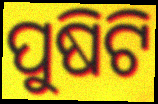
ପୁଷିଟି